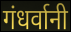
गंधर्वानी